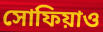
সোফিয়াও